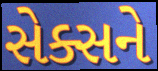
સેક્સને